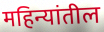
महिन्यांतील